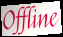
Offline